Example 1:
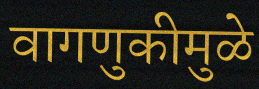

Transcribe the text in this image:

वागणुकीमुळे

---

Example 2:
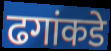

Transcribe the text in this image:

ढगांकडे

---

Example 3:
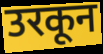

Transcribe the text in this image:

उरकून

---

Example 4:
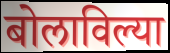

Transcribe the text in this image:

बोलाविल्या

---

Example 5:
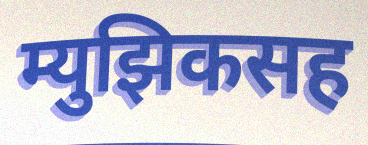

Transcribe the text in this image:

म्युझिकसह